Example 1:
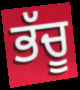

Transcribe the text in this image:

ਭੱਚੂ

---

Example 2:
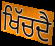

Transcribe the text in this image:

ਖਿੱਚਦੈ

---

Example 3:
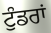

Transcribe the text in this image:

ਟੁੰਡਰਾਂ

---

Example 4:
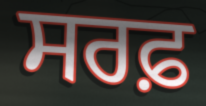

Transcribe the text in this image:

ਸਰਫ਼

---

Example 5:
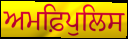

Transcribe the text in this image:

ਅਮਫ਼ਿਪੁਲਿਸ